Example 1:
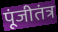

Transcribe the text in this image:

पूंजीतंत्र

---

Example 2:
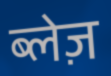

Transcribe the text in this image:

ब्लेज़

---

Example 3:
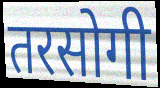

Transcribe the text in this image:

तरसोगी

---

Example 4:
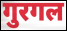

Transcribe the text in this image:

गुरगल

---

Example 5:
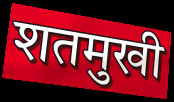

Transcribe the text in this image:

शतमुखी